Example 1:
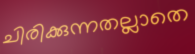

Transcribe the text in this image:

ചിരിക്കുന്നതല്ലാതെ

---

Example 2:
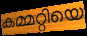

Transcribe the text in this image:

കമ്മറ്റിയെ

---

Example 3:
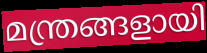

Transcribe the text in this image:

മന്ത്രങ്ങളായി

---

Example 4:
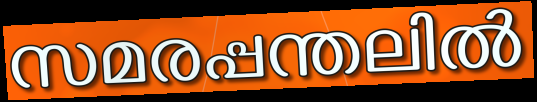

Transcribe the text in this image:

സമരപ്പന്തലിൽ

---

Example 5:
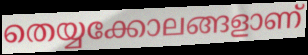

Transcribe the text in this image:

തെയ്യക്കോലങ്ങളാണ്